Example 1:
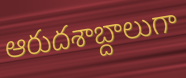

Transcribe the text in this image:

ఆరుదశాబ్దాలుగా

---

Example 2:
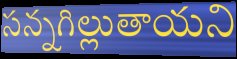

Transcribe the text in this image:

సన్నగిల్లుతాయని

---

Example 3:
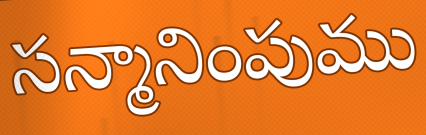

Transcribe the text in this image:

సన్మానింపుము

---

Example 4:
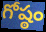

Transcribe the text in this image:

గోష్ఠం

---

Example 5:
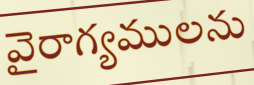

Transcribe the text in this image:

వైరాగ్యములను